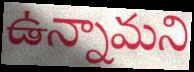
ఉన్నామని